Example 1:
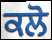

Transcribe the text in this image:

ਕਲੋ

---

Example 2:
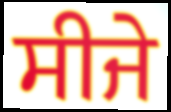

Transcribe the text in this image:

ਸੀਜੇ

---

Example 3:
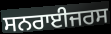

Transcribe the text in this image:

ਸਨਰਾਈਜਰਸ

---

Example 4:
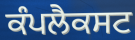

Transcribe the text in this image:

ਕੰਪਲੈਕਸਟ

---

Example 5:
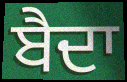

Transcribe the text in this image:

ਬੈਦਾ